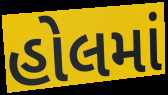
હોલમાં